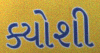
ક્યોશી